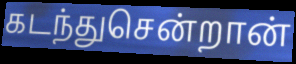
கடந்துசென்றான்